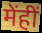
मेंहीं